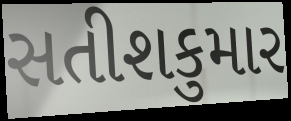
સતીશકુમાર